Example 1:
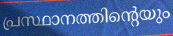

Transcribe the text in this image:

പ്രസ്ഥാനത്തിന്റെയും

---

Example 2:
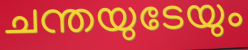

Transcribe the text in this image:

ചന്തയുടേയും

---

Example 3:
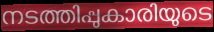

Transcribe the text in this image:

നടത്തിപ്പുകാരിയുടെ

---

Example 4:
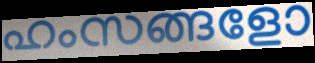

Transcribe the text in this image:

ഹംസങ്ങളോ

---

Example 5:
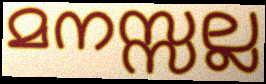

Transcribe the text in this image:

മനസ്സല്ല